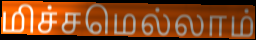
மிச்சமெல்லாம்